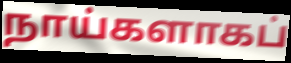
நாய்களாகப்